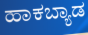
ಹಾಕಬ್ಯಾಡ